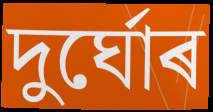
দুৰ্ঘোৰ